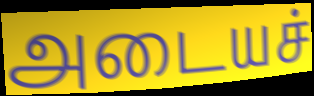
அடையச்